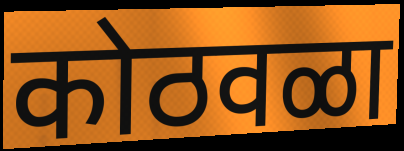
कोठवळा